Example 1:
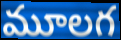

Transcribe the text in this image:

మూలగ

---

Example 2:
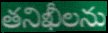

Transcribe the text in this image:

తనిఖీలను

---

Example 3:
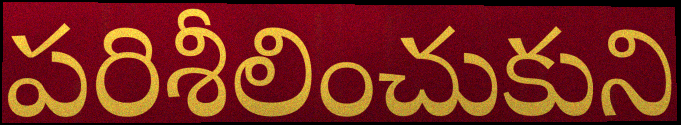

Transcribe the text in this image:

పరిశీలించుకుని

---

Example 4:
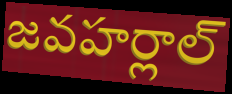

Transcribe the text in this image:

జవహర్లాల్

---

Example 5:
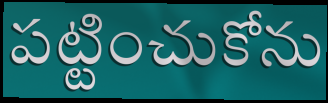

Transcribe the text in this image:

పట్టించుకోను